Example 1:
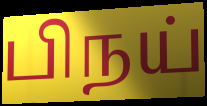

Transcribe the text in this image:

பிநய்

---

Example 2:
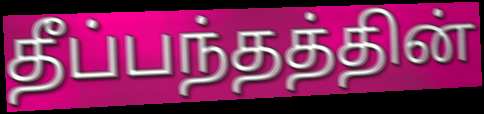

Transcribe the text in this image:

தீப்பந்தத்தின்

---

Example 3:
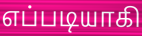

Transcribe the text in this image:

எப்படியாகி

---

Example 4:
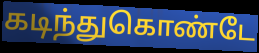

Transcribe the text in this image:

கடிந்துகொண்டே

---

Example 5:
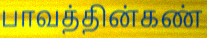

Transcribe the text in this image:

பாவத்தின்கண்